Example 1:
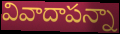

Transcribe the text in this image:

వివాదాపన్నా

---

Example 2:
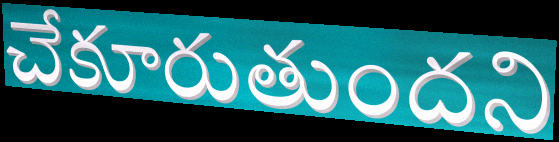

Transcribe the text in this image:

చేకూరుతుందని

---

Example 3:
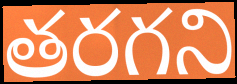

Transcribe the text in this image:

తరగని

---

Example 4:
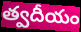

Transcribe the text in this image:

త్వదీయం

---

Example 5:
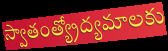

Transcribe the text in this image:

స్వాతంత్య్రోద్యమాలకు